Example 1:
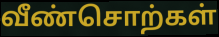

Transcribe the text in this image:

வீண்சொற்கள்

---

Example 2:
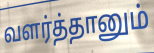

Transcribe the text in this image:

வளர்த்தானும்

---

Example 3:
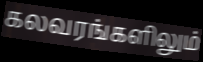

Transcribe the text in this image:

கலவரங்களிலும்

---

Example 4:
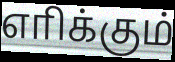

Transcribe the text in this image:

எரிக்கும்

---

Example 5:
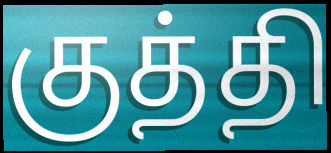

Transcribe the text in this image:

குத்தி